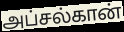
அப்சல்கான்